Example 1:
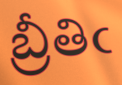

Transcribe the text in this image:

బ్రీతిఁ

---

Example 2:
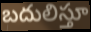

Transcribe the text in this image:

బదులిస్తూ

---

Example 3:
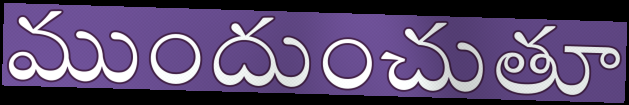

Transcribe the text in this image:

ముందుంచుతూ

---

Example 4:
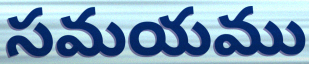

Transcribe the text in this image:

సమయము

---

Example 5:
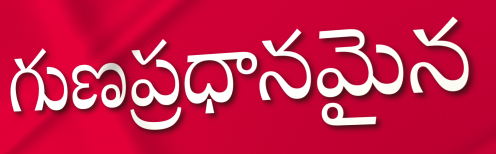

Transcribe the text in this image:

గుణప్రధానమైన